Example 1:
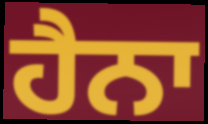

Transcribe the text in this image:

ਹੈਨਾ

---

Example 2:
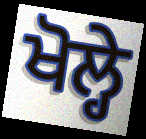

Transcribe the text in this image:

ਖੋਲ੍ਹੇ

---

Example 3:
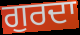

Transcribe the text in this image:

ਗੁਰਦਾ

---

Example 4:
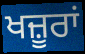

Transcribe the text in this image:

ਖਜ਼ੂਰਾਂ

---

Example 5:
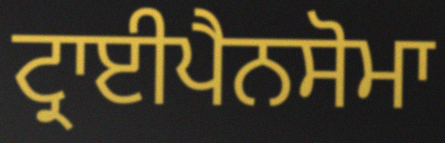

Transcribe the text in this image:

ਟ੍ਰਾਈਪੈਨਸੋਮਾ